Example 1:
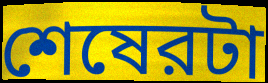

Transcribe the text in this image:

শেষেরটা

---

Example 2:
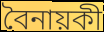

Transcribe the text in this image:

বৈনায়কী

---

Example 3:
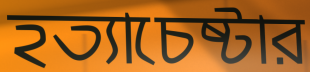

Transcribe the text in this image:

হত্যাচেষ্টার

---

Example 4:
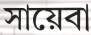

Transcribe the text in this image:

সায়েবা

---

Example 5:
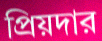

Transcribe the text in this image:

প্রিয়দার